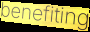
benefiting